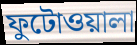
ফুটোওয়ালা